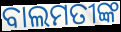
ବାଲମତୀଙ୍କ